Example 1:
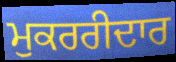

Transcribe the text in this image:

ਮੁਕਰਰੀਦਾਰ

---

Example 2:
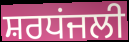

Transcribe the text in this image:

ਸ਼ਰਧਂਜਲੀ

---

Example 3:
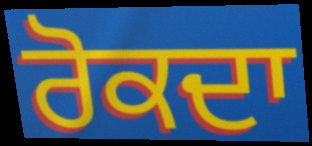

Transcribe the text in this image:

ਰੋਕਦਾ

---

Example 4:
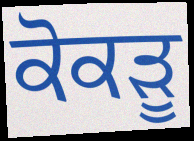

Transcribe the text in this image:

ਕੋਕੜੂ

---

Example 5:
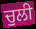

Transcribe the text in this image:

ਚੁਲੀ